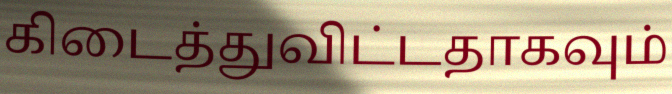
கிடைத்துவிட்டதாகவும்